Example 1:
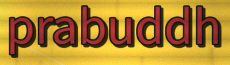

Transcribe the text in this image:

prabuddh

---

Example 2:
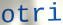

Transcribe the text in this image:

otri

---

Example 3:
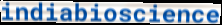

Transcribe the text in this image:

indiabioscience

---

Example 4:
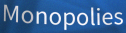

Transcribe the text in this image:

Monopolies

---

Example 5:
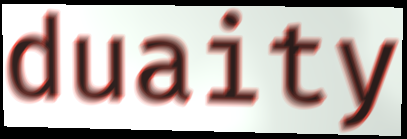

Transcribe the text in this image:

duaity